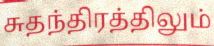
சுதந்திரத்திலும்